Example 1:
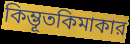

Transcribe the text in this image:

কিম্ভূতকিমাকার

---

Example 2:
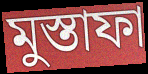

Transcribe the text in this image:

মুস্তাফা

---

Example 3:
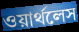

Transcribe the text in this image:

ওয়ার্থলেস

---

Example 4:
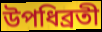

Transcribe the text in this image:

উপধিব্রতী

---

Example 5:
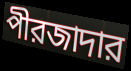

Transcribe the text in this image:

পীরজাদার